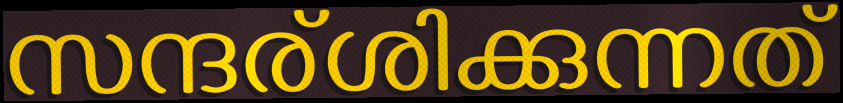
സന്ദര്ശിക്കുന്നത്